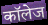
कॉलेज